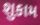
શુકામ